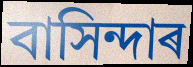
বাসিন্দাৰ